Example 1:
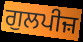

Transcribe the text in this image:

ਗੁਲਪੀਜ਼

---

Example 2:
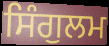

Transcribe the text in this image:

ਸਿੰਗੁਲਮ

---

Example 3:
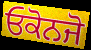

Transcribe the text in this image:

ਓਕੋਨਜੋ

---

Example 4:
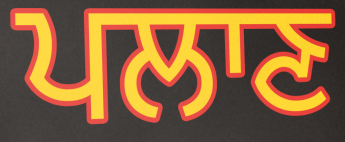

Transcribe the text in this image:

ਪਲਾਣ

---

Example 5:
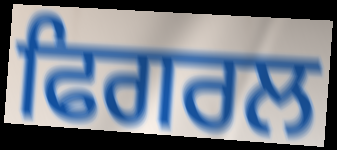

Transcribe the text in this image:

ਫਿਗਰਲ